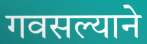
गवसल्याने